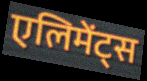
एलिमेंट्स